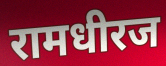
रामधीरज